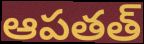
ఆపతత్